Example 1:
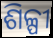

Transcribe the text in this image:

ଶିଳ୍ପୀ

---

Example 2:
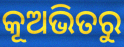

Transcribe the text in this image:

କୂଅଭିତରୁ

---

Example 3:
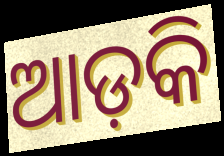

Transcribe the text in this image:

ଆଡ଼କି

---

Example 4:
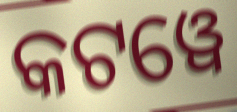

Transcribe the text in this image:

କଟୱେ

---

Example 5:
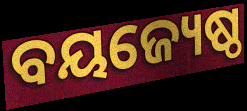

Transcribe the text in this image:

ବୟଜ୍ୟେଷ୍ଠ